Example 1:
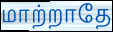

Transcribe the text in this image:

மாற்றாதே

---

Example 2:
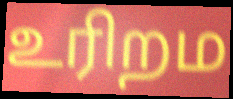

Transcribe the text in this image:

உரிறம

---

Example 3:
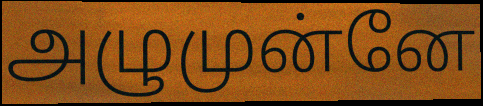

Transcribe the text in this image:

அழுமுன்னே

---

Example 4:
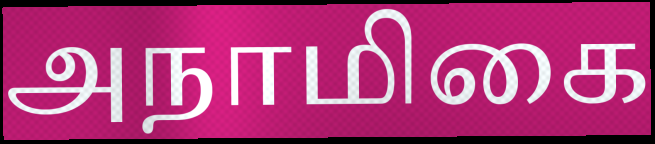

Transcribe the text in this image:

அநாமிகை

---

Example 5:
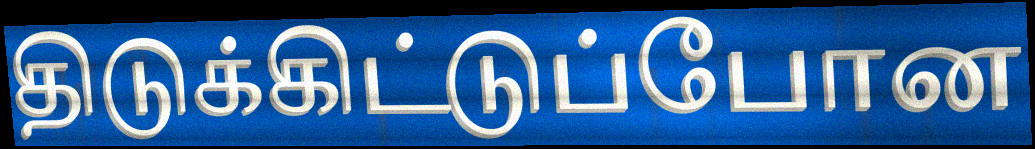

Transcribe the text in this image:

திடுக்கிட்டுப்போன